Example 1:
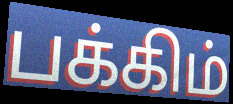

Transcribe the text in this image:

பக்கிம்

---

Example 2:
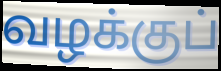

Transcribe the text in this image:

வழக்குப்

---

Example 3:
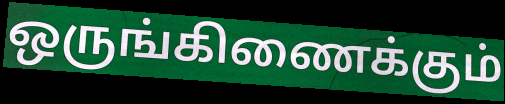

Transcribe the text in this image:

ஒருங்கிணைக்கும்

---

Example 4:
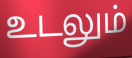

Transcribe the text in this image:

உடலும்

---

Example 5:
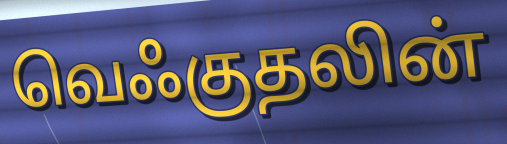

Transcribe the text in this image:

வெஃகுதலின்